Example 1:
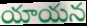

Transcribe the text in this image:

యాయన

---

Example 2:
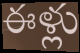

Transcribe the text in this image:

ఈళ్లు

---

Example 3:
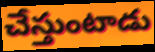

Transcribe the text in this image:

చేస్తుంటాడు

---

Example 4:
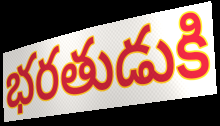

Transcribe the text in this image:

భరతుడుకి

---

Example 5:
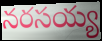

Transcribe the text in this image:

నరసయ్య